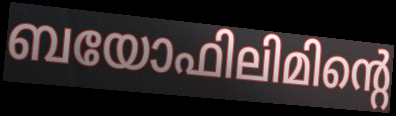
ബയോഫിലിമിന്റെ